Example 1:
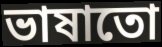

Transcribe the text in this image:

ভাষাতো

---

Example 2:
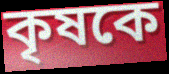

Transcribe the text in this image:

কৃষকে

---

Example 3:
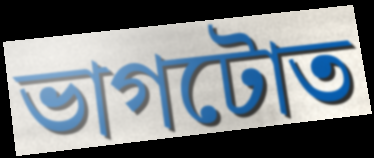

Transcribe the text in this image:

ভাগটোত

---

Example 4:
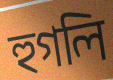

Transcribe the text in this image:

হুগলি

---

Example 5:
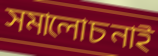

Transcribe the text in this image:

সমালোচনাই